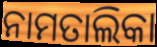
ନାମତାଲିକା